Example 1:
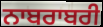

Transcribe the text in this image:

ਨਾਬਰਾਬਰੀ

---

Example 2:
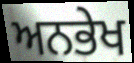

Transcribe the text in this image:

ਅਨਭੇਖ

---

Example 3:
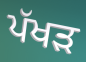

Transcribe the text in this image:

ਪੱਖੜ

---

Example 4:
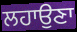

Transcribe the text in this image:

ਲਹਾਉਣਾ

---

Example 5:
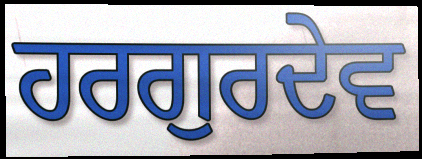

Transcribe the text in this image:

ਹਰਗੁਰਦੇਵ